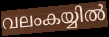
വലംകയ്യിൽ